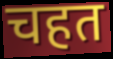
चहत